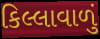
કિલ્લાવાળું